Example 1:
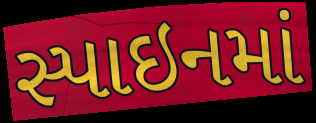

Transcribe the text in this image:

સ્પાઇનમાં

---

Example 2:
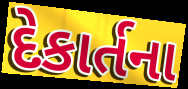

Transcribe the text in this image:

દેકાર્તના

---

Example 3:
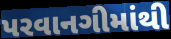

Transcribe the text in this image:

પરવાનગીમાંથી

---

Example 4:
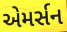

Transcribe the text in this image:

એમર્સન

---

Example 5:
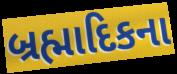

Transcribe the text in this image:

બ્રહ્માદિકના